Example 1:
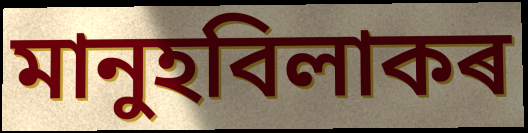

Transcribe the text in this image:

মানুহবিলাকৰ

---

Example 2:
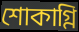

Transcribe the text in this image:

শোকাগ্নি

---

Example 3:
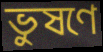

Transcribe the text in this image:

ভুষণে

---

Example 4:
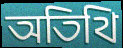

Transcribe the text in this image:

অতিথি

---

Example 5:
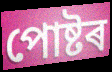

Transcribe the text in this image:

পোষ্টৰ